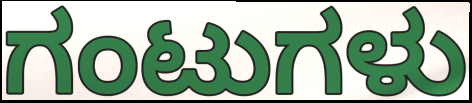
ಗಂಟುಗಳು